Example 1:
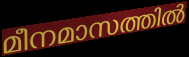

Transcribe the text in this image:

മീനമാസത്തിൽ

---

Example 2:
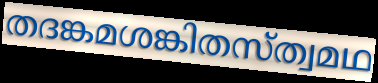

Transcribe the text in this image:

തദങ്കമശങ്കിതസ്ത്വമഥ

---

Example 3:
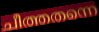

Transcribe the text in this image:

ചീത്തതന്നെ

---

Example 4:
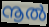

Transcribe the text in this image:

നൂൽ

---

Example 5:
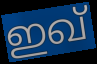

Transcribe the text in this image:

ഇഖ്